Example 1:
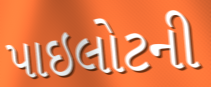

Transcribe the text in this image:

પાઇલોટની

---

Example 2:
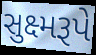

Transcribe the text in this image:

સુક્ષ્મરૂપે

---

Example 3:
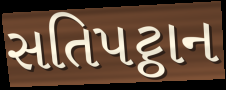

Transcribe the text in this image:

સતિપટ્ઠાન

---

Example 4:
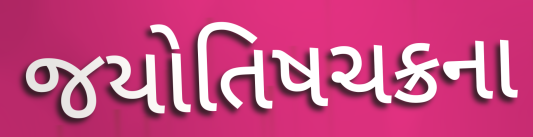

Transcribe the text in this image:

જયોતિષચક્રના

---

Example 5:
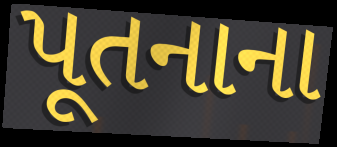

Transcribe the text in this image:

પૂતનાના